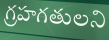
గ్రహగతులని